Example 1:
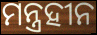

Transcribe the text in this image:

ମନ୍ତ୍ରହୀନ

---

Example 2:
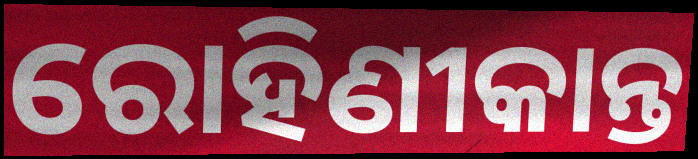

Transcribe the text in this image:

ରୋହିଣୀକାନ୍ତ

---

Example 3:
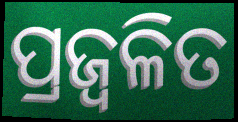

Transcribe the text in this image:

ପ୍ରଜ୍ୱଳିତ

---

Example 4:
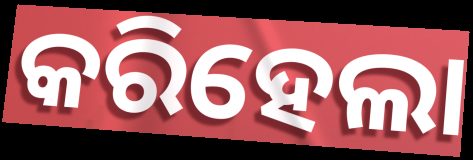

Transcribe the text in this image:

କରିହେଲା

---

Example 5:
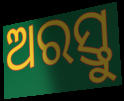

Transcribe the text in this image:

ଅରସ୍ତୁ